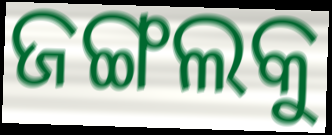
ଜଙ୍ଗଲକୁ